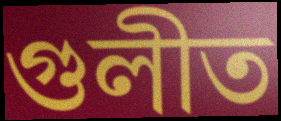
গুলীত